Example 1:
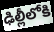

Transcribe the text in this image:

ఢిల్లీలోకి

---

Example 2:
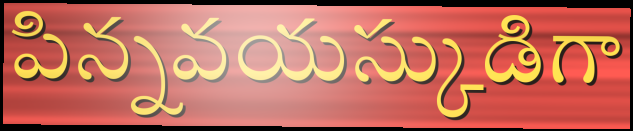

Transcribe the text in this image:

పిన్నవయస్కుడిగా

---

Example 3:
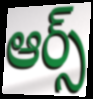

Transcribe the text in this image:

ఆర్స్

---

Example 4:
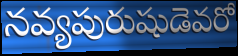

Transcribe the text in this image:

నవ్యపురుషుడెవరో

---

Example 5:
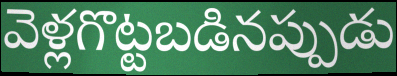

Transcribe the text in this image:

వెళ్లగొట్టబడినప్పుడు